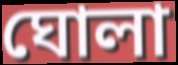
ঘোলা